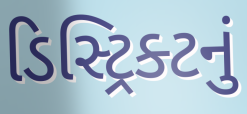
ડિસ્ટ્રિક્ટનું